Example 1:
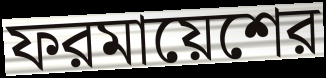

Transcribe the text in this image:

ফরমায়েশের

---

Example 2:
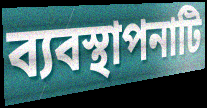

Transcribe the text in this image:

ব্যবস্থাপনাটি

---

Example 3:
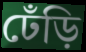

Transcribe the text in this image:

ঢেঁড়ি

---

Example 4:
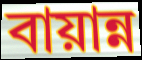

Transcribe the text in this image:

বায়ান্ন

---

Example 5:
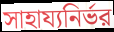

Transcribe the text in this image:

সাহায্যনির্ভর